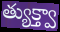
త్యుక్త్వా